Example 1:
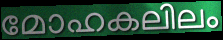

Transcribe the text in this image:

മോഹകലിലം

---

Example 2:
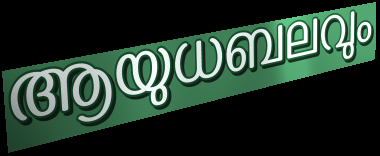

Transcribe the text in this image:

ആയുധബലവും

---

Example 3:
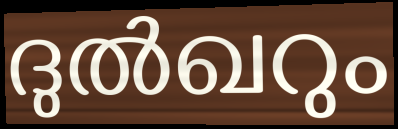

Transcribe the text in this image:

ദുൽഖറും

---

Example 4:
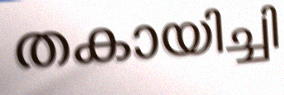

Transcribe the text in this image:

തകായിച്ചി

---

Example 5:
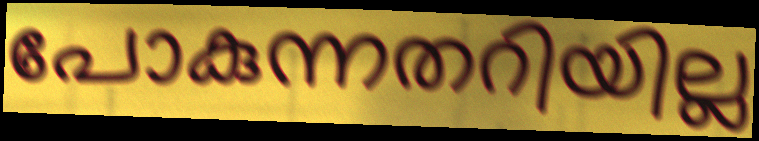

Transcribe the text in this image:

പോകുന്നതറിയില്ല